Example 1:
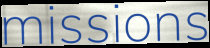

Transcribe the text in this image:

missions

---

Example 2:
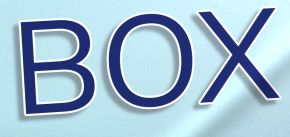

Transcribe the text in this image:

BOX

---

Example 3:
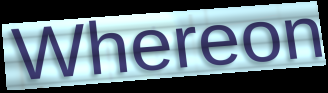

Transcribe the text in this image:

Whereon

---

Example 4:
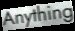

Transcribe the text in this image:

Anything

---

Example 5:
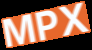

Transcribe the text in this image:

MPX